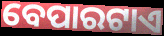
ବେପାରଟାଏ